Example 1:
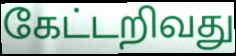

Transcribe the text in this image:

கேட்டறிவது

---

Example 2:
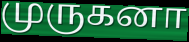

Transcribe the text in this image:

முருகனா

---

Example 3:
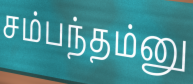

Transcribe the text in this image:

சம்பந்தம்னு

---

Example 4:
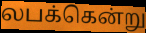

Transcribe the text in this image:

லபக்கென்று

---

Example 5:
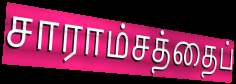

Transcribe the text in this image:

சாராம்சத்தைப்